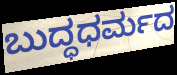
ಬುದ್ಧಧರ್ಮದ